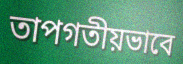
তাপগতীয়ভাবে